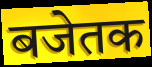
बजेतक